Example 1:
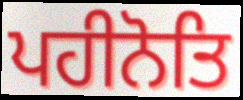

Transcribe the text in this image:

ਪਹੀਨੋਤਿ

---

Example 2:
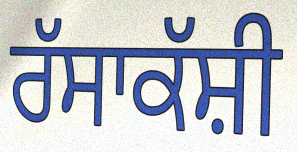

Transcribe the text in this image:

ਰੱਸਾਕੱਸ਼ੀ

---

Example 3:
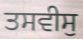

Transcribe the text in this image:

ਤਸਵੀਸੁ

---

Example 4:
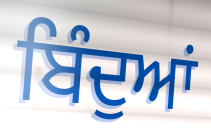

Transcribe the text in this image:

ਬਿੰਦੁਆਂ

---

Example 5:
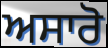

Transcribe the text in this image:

ਅਸਾਰੋ